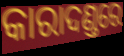
କାରାଦଣ୍ଡରେ